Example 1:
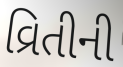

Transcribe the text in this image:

વ્રિતીની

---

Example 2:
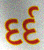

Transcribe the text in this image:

દર્દ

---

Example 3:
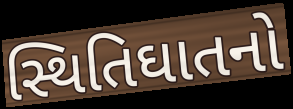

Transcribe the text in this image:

સ્થિતિઘાતનો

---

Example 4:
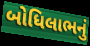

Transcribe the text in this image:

બોધિલાભનું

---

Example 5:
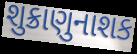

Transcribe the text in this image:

શુક્રાણુનાશક